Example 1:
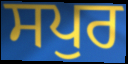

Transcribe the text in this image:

ਸਪੁਰ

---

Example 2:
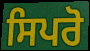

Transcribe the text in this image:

ਸਿਪਰੋ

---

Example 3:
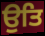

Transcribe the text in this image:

ਉਤਿ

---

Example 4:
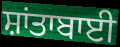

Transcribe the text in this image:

ਸ਼ਾਂਤਾਬਾਈ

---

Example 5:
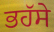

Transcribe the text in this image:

ਭਹੱਸੇ